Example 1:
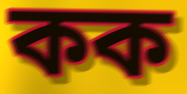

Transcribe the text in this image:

কক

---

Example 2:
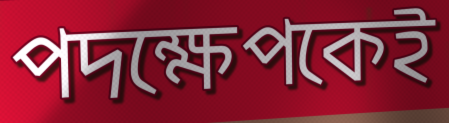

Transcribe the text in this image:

পদক্ষেপকেই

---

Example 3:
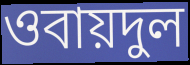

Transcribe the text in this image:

ওবায়দুল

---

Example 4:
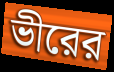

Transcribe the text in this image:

ভীরের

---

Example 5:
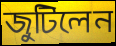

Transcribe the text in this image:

জুটিলেন